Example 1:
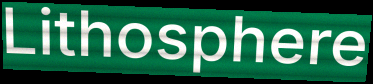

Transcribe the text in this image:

Lithosphere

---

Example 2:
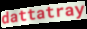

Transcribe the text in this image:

dattatray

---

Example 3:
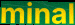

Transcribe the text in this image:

minal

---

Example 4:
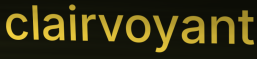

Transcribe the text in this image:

clairvoyant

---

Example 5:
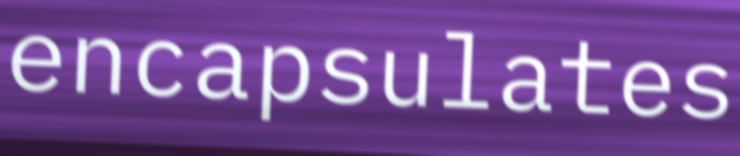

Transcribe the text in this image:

encapsulates